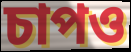
চাপও